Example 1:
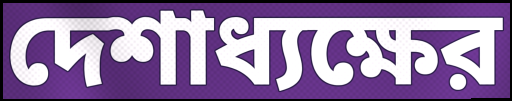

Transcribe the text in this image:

দেশাধ্যক্ষের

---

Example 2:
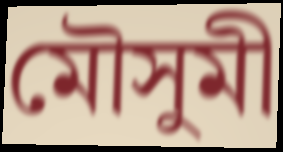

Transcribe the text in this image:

মৌসুমী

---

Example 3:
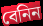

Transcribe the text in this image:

বেনিন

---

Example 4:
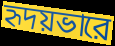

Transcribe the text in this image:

হৃদয়ভারে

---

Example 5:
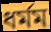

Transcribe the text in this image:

ধর্মম